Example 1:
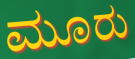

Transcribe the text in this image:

ಮೂರು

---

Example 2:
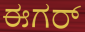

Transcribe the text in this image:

ಈಗರ್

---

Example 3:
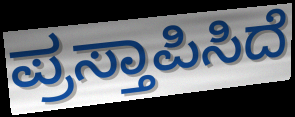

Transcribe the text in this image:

ಪ್ರಸ್ತಾಪಿಸಿದೆ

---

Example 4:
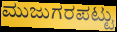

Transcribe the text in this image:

ಮುಜುಗರಪಟ್ಟು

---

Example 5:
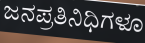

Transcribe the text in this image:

ಜನಪ್ರತಿನಿಧಿಗಳೂ